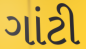
ગાંટી